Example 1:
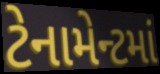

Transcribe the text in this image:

ટેનામેન્ટમાં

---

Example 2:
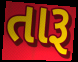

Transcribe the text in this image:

તારૂ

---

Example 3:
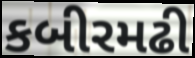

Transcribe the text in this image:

કબીરમઢી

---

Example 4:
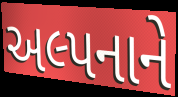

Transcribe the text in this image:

અલ્પનાને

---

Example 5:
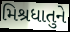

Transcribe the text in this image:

મિશ્રધાતુને